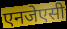
एनजेएसी